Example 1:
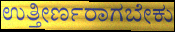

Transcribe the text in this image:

ಉತ್ತೀರ್ಣರಾಗಬೇಕು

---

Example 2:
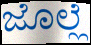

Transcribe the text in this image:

ಜೊಲ್ಲೆ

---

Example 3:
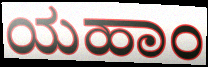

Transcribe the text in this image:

ಯಹಾಂ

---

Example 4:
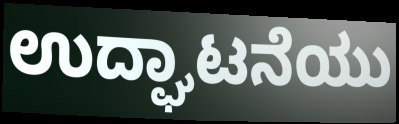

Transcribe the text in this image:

ಉದ್ಘಾಟನೆಯು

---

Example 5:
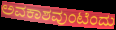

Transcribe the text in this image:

ಅವಕಾಶವುಂಟೆಂದು